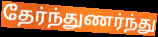
தேர்ந்துணர்ந்து